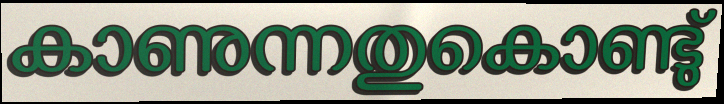
കാണുന്നതുകൊണ്ടു്